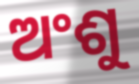
ଅଂଶୁ